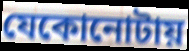
যেকোনোটায়